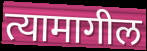
त्यामागील